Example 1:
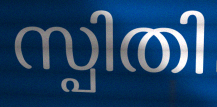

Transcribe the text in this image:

സ്പിതി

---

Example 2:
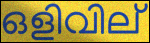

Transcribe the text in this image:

ഒളിവില്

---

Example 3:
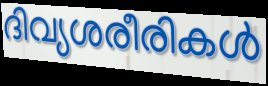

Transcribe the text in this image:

ദിവ്യശരീരികൾ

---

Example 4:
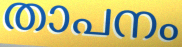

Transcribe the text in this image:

താപനം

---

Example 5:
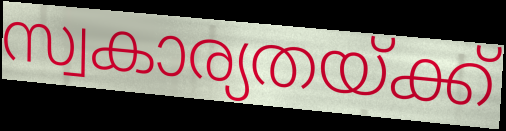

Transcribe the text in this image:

സ്വകാര്യതയ്ക്ക്